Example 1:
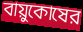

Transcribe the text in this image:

বায়ুকোষের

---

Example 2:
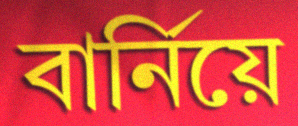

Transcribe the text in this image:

বার্নিয়ে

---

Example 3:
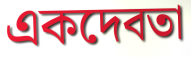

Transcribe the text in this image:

একদেবতা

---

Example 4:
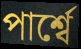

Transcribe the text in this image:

পার্শ্বে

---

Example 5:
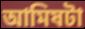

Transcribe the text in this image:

আমিষটা